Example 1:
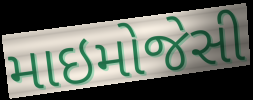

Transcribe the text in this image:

માઇમોજેસી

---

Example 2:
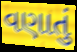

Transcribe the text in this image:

વણાતું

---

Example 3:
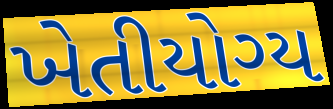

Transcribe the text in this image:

ખેતીયોગ્ય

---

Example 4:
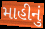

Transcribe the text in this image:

માહીનું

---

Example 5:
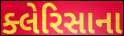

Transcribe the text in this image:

ક્લેરિસાના